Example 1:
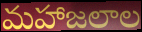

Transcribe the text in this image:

మహాజలాల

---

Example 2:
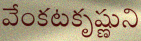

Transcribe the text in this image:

వేంకటకృష్ణుని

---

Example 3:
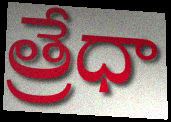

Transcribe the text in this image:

త్రేధా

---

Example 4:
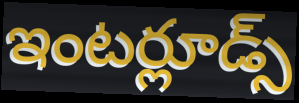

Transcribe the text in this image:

ఇంటర్లూడ్స్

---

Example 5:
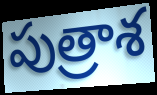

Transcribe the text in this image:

పుత్రాశ